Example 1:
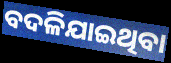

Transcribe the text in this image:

ବଦଳିଯାଇଥିବା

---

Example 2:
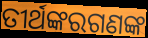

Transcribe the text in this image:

ତୀର୍ଥଙ୍କରଗଣଙ୍କ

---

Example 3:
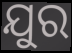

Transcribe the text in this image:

ଯୁର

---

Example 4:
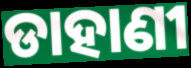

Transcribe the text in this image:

ଡାହାଣୀ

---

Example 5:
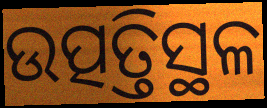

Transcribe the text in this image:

ଉତ୍ପତ୍ତିସ୍ଥଳ